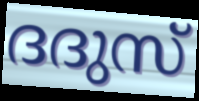
ദദുസ്